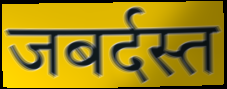
जबर्दस्त